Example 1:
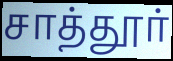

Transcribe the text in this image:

சாத்தூர்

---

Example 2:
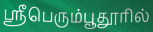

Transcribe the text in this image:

ஸ்ரீபெரும்பூதூரில்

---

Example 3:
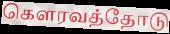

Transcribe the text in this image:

கௌரவத்தோடு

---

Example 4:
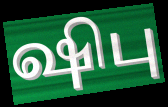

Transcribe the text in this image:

ஷிபு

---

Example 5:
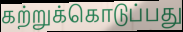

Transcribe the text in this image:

கற்றுக்கொடுப்பது